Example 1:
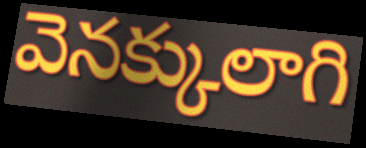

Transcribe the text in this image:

వెనక్కులాగి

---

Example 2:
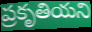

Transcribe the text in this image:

ప్రకృతియని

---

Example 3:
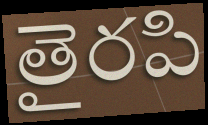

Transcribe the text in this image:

తైరపి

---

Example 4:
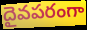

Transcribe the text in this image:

దైవపరంగా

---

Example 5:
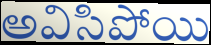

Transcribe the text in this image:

అవిసిపోయి